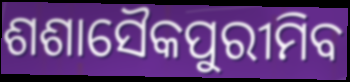
ଶଶାସୈକପୁରୀମିବ